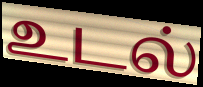
உடல்